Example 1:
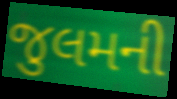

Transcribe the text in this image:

જુલમની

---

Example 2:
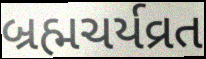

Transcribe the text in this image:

બ્રહ્મચર્યવ્રત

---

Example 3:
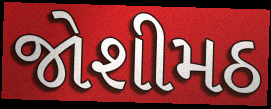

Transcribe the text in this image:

જોશીમઠ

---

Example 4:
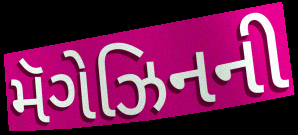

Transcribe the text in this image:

મૅગેઝિનની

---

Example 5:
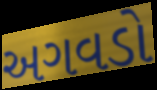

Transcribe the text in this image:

અગવડો